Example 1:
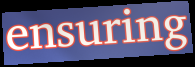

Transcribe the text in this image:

ensuring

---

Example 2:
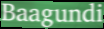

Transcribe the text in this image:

Baagundi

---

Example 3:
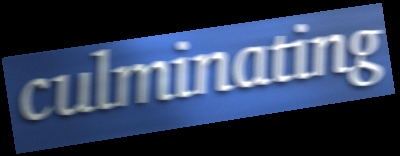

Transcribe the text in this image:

culminating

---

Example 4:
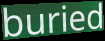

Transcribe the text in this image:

buried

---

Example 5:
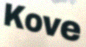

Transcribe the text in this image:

Kove